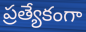
ప్రత్యేకంగా